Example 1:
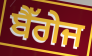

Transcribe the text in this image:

ਬੈੱਗੇਜ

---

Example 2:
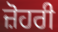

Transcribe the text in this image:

ਜ਼ੋਹਰੀ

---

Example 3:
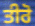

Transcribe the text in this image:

ਤੀਰੋ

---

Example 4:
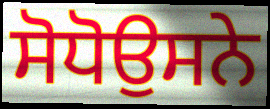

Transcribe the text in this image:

ਸੋਧੋਉਸਨੇ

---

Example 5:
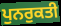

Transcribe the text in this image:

ਪੁਨਰੁਕਤੀ